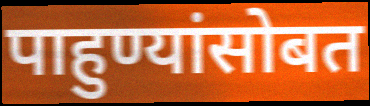
पाहुण्यांसोबत